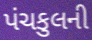
પંચકુલની